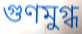
গুণমুগ্ধ